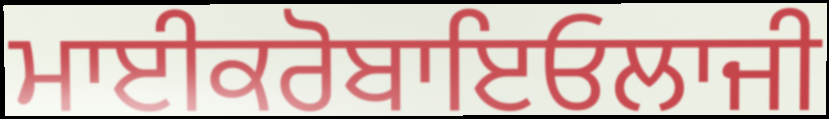
ਮਾਈਕਰੋਬਾਇਓਲਾਜੀ